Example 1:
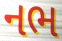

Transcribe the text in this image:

નભ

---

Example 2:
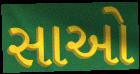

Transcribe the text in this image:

સાઓ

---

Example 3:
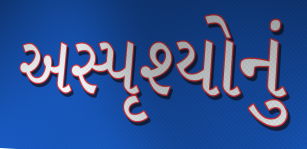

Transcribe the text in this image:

અસ્પૃશ્યોનું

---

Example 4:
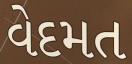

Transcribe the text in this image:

વેદમત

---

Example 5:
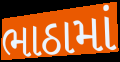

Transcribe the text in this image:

ભાઠામાં